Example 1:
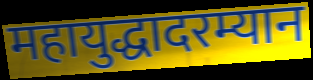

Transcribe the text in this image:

महायुद्धादरम्यान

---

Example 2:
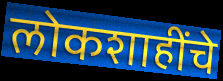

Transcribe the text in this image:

लोकशाहींचे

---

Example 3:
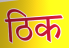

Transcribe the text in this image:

ठिक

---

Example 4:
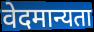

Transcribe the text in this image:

वेदमान्यता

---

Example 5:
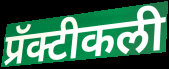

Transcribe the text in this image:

प्रॅक्टीकली